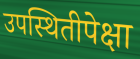
उपस्थितीपेक्षा